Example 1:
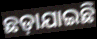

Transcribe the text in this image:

ଛଡ଼ାଯାଇଛି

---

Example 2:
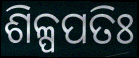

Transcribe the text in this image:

ଶିଳ୍ପପତିଃ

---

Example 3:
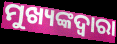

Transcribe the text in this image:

ମୁଖ୍ୟଙ୍କଦ୍ଵାରା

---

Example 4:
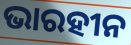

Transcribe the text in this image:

ଭାରହୀନ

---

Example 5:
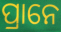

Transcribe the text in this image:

ପ୍ରାନେ